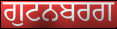
ਗੁਟਨਬਰਗ